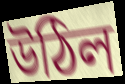
উঠিল